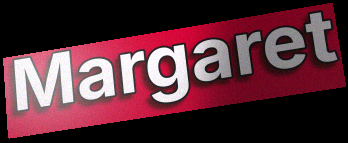
Margaret